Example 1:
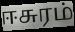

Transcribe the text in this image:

ஈசுரம்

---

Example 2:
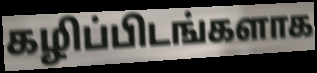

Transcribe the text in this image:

கழிப்பிடங்களாக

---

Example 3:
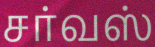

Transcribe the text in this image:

சர்வஸ்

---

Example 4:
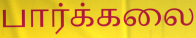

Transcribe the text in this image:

பார்க்கலை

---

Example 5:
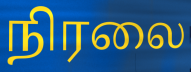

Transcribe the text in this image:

நிரலை